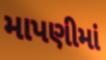
માપણીમાં